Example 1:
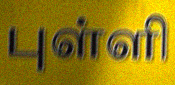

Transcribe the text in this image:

புள்ளி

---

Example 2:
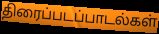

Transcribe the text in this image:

திரைப்படப்பாடல்கள்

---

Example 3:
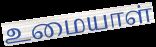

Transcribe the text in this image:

உமையாள்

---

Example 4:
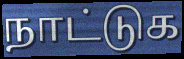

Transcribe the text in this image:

நாட்டுக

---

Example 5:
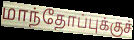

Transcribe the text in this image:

மாந்தோப்புக்குச்